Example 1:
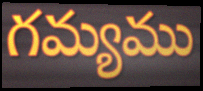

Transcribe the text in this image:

గమ్యము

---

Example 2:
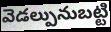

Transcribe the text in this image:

వెడల్పునుబట్టి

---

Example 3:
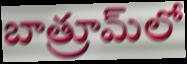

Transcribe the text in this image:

బాత్రూమ్‌లో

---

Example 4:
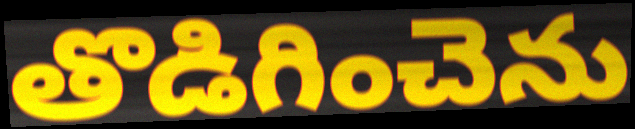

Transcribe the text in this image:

తొడిగించెను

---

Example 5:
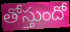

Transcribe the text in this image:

తోస్తుందో